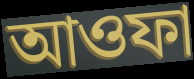
আওফা